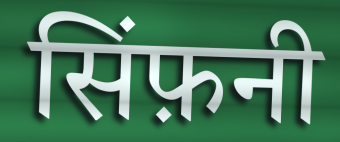
सिंफ़नी